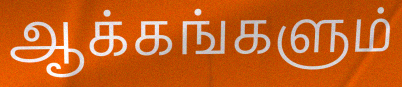
ஆக்கங்களும்